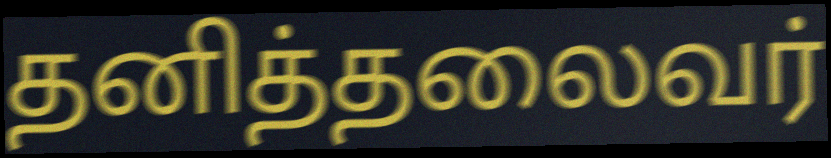
தனித்தலைவர்